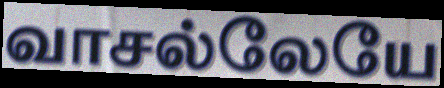
வாசல்லேயே